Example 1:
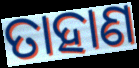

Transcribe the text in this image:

ତାହାଣ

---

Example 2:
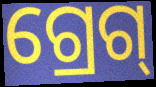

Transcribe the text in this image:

ଗ୍ରେଗ୍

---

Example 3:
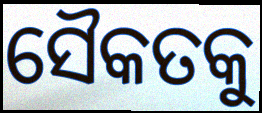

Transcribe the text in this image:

ସୈକତକୁ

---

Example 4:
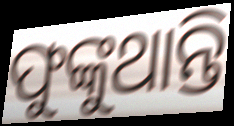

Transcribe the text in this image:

ଫୁଙ୍କୁଥାନ୍ତି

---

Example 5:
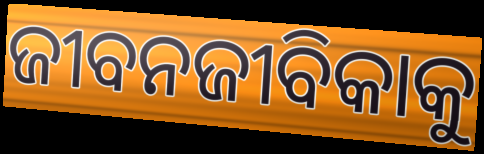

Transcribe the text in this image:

ଜୀବନଜୀବିକାକୁ